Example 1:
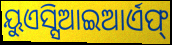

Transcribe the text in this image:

ୟୁଏସ୍ସିଆଇଆର୍ଏଫ୍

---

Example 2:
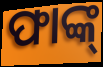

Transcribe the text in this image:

ଫାଙ୍କ୍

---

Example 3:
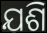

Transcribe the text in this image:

ଯଶି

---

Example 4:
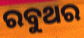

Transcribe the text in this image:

ରବୁଥର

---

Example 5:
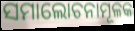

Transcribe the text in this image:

ସମାଲୋଚନାମୂଳକ